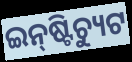
ଇନ୍‌ଷ୍ଟିଚ୍ୟୁଟ